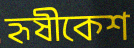
হৃষীকেশ